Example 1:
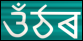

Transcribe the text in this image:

ওঁঠৰ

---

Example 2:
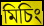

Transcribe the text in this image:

মিচিং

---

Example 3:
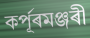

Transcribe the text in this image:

কৰ্পূৰমঞ্জৰী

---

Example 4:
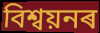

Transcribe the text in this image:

বিশ্বয়নৰ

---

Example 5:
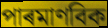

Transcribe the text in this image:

পাৰমাণবিক